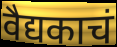
वैद्यकाचं